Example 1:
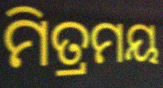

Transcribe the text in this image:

ମିତ୍ରମୟ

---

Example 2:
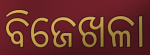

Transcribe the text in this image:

ବିଜେଖଳା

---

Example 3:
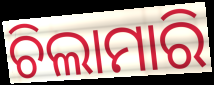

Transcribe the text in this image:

ଚିଲାମାରି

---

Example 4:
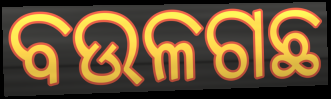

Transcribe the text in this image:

ବଉଳଗଛ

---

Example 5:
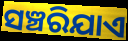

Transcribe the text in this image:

ସଞ୍ଚରିଯାଏ